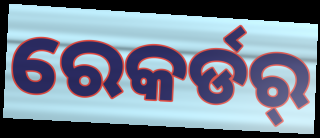
ରେକର୍ଡର୍